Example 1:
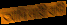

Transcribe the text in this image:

আদিনারীবাদী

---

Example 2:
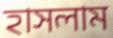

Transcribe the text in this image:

হাসলাম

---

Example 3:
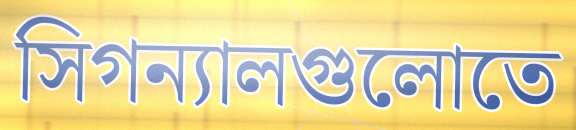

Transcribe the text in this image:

সিগন্যালগুলোতে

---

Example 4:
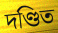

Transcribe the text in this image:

দণ্ডিত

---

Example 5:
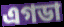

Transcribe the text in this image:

এগডা